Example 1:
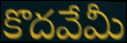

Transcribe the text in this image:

కొదవేమీ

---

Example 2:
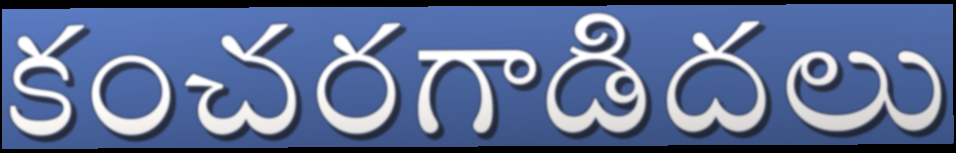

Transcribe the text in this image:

కంచరగాడిదలు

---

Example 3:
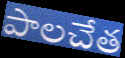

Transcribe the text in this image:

పాలచేత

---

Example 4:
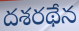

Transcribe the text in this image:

దశరథేన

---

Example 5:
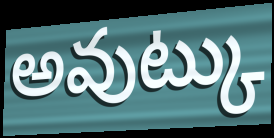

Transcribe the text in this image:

అవుట్కు